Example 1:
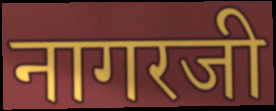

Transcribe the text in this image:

नागरजी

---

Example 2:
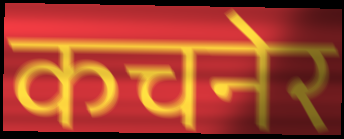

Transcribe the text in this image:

कचनेर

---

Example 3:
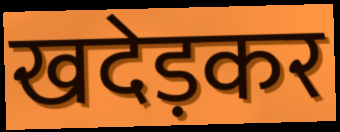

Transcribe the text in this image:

खदेड़कर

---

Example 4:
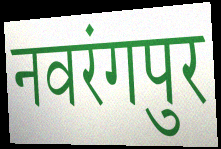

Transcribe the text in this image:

नवरंगपुर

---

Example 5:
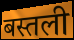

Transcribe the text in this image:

बस्तली